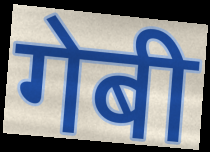
गेबी